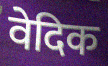
वेदिक